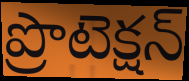
ప్రొటెక్షన్